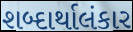
શબ્દાર્થાલંકાર